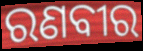
ରଣବୀର